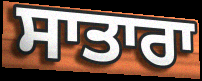
ਸਾਤਾਰਾ